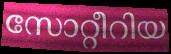
സോറ്റീറിയ